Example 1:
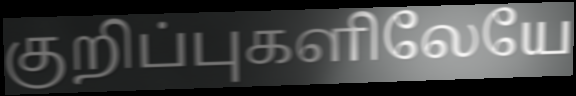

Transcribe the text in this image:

குறிப்புகளிலேயே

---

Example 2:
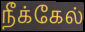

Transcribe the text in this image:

நீக்கேல்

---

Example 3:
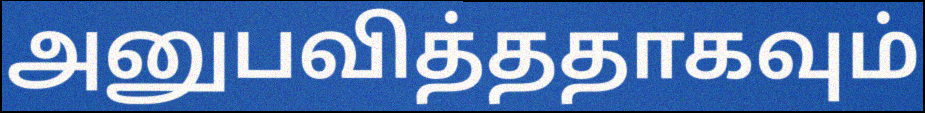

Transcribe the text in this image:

அனுபவித்ததாகவும்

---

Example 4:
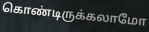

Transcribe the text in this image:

கொண்டிருக்கலாமோ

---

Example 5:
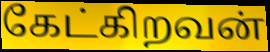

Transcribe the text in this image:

கேட்கிறவன்